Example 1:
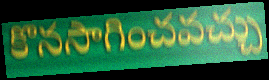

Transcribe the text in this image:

కొనసాగించవచ్చు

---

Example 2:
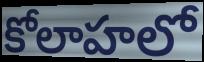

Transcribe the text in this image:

కోలాహలో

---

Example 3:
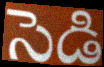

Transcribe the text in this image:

సెడి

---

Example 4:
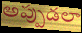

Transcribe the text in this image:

అప్పుడలా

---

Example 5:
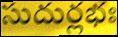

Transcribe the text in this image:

సుదుర్లభః